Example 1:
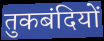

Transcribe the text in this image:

तुकबंदियों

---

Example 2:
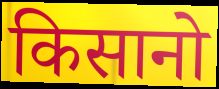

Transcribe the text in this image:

किसानो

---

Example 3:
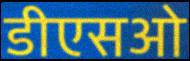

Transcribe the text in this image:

डीएसओ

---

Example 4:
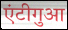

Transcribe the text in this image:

एंटीगुआ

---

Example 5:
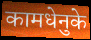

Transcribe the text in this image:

कामधेनुके